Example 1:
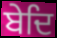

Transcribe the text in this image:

ਬੇਦਿ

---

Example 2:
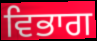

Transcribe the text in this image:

ਵਿਭਾਗ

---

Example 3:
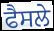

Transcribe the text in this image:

ਫੈਸਲੇ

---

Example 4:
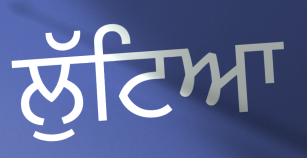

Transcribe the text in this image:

ਲੁੱਟਿਆ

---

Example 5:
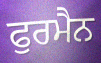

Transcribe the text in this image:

ਫੁਰਮੈਨ